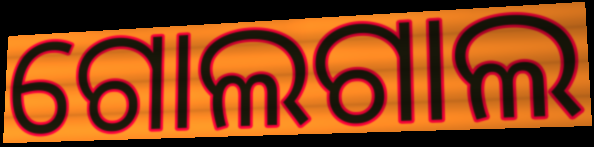
ଗୋଲଗାଲ